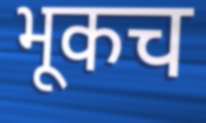
भूकच